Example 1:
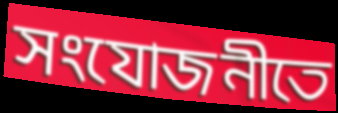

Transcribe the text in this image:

সংযোজনীতে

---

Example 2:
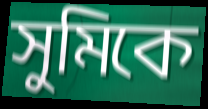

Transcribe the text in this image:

সুমিকে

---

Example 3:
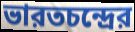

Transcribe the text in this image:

ভারতচন্দ্রের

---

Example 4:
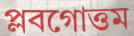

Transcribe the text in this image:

প্লবগোত্তম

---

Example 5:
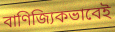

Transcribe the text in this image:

বাণিজ্যিকভাবেই